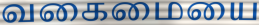
வகைமையை